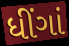
ધીંગાં